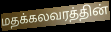
மதக்கலவரத்தின்